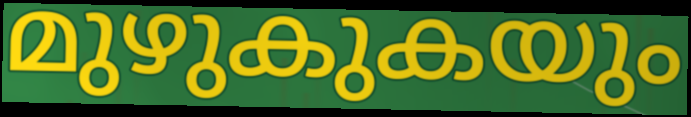
മുഴുകുകയും